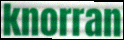
knorran